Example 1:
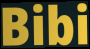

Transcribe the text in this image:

Bibi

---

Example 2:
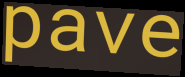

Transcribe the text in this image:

pave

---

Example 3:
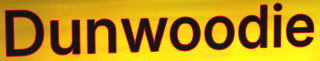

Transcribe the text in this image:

Dunwoodie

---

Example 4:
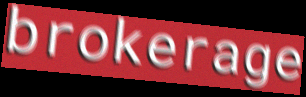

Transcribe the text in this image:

brokerage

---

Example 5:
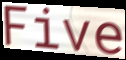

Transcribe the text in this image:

Five